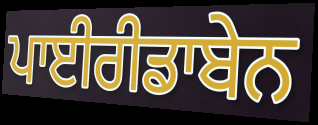
ਪਾਈਰੀਡਾਬੇਨ